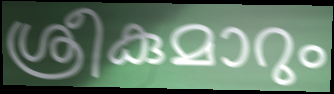
ശ്രീകുമാറും